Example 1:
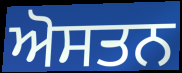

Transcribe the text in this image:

ਅੋਸਤਨ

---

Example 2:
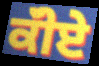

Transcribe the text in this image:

ਕੱੀਏ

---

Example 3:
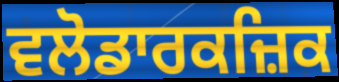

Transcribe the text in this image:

ਵਲੋਡਾਰਕਜ਼ਿਕ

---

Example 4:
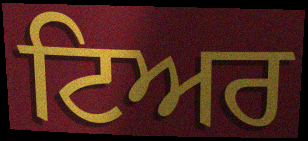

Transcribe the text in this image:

ਟਿਅਰ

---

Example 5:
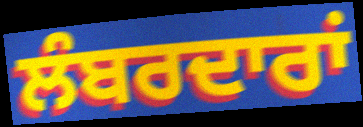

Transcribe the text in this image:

ਲੰਬਰਦਾਰਾਂ